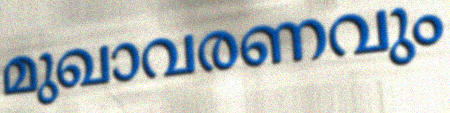
മുഖാവരണവും